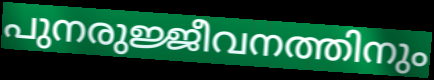
പുനരുജ്ജീവനത്തിനും